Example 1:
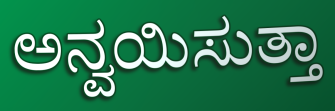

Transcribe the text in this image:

ಅನ್ವಯಿಸುತ್ತಾ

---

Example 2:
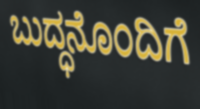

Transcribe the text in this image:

ಬುದ್ಧನೊಂದಿಗೆ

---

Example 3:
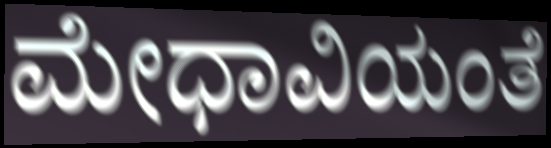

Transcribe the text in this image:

ಮೇಧಾವಿಯಂತೆ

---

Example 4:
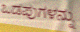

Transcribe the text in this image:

ಒಡಪುಗಳನ್ನು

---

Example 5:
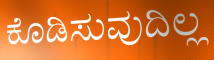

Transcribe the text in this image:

ಕೊಡಿಸುವುದಿಲ್ಲ